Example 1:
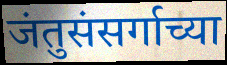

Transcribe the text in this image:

जंतुसंसर्गाच्या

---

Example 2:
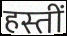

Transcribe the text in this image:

हस्तीं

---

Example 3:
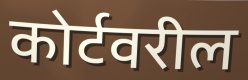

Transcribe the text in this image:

कोर्टवरील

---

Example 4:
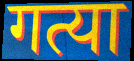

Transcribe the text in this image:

गत्या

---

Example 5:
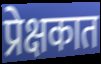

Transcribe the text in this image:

प्रेक्षकात